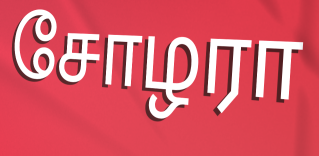
சோழரா